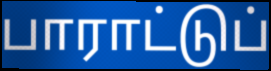
பாராட்டுப்